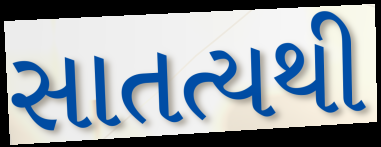
સાતત્યથી